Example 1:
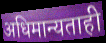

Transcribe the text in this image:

अधिमान्यताही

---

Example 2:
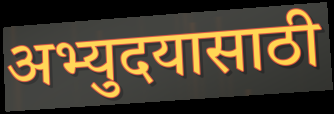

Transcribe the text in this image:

अभ्युदयासाठी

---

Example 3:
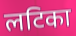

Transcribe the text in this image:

लटिका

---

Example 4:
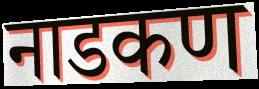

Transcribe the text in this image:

नाडकण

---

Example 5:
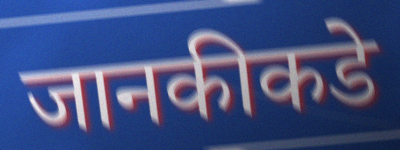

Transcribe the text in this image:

जानकीकडे